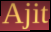
Ajit